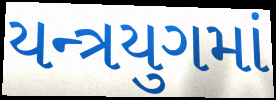
યન્ત્રયુગમાં